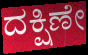
ದಕ್ಷಿಣೇ